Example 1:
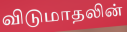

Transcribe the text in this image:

விடுமாதலின்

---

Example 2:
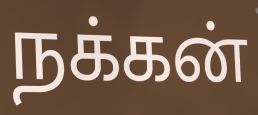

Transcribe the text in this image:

நக்கன்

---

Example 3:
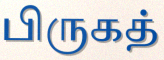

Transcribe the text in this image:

பிருகத்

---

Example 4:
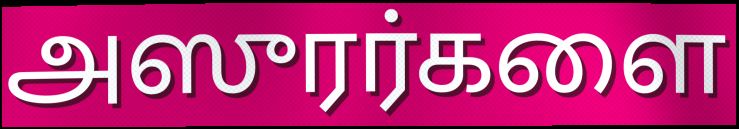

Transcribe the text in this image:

அஸுரர்களை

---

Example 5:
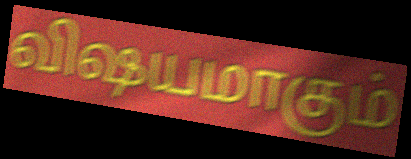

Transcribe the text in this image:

விஷயமாகும்